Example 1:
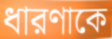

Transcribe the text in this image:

ধারণাকে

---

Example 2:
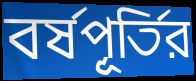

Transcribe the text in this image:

বর্ষপূর্তির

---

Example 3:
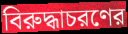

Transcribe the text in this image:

বিরুদ্ধাচরণের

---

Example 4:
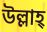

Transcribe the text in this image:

উল্লাহ্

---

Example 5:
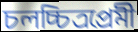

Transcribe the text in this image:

চলচ্চিত্রপ্রেমী